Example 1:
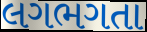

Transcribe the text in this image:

લગભગતા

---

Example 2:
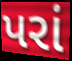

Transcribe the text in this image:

પરાં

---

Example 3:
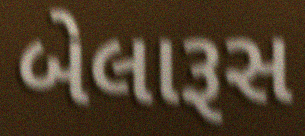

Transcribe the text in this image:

બેલારૂસ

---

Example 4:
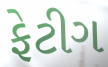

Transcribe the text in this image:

ફેટીગ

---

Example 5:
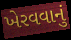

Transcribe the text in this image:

ખેરવવાનું